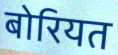
बोरियत